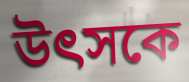
উৎসকে